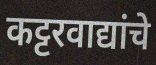
कट्टरवाद्यांचे